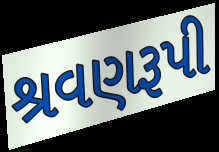
શ્રવણરૂપી